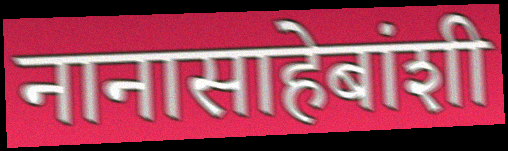
नानासाहेबांशी